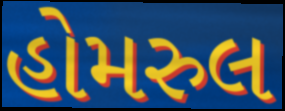
હોમરુલ